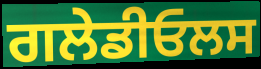
ਗਲੇਡੀਓਲਸ